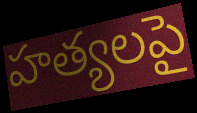
హత్యలపై